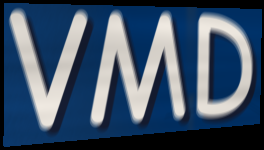
VMD